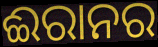
ଈରାନର